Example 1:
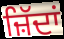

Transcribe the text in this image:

ਜ਼ਿੱਦਾਂ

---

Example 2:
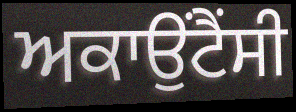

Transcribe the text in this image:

ਅਕਾਉਂਟੈਂਸੀ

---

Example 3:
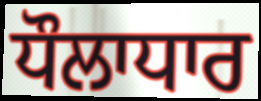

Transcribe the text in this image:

ਧੌਲਾਧਾਰ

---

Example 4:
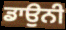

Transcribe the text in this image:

ਡਾਉਨੀ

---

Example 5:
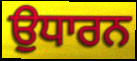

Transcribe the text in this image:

ਉਧਾਰਨ